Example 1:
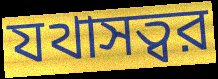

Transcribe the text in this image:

যথাসত্বর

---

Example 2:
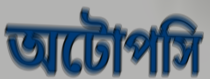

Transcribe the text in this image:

অটোপসি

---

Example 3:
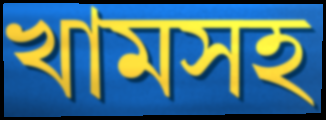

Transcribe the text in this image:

খামসহ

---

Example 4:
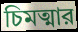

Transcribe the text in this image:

চিমত্মার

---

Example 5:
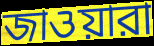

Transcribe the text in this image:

জাওয়ারা